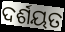
ଦର୍ଶୟତ